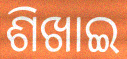
ଶିଖାଇ